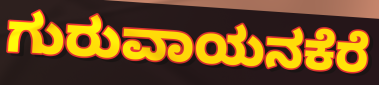
ಗುರುವಾಯನಕೆರೆ